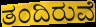
ತಂದಿರುವೆ